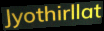
Jyothirllat